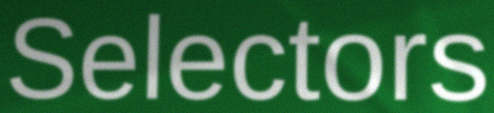
Selectors